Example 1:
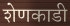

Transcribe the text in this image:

शेणकाडी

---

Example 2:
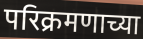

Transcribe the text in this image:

परिक्रमणाच्या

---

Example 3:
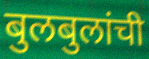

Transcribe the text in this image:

बुलबुलांची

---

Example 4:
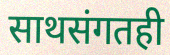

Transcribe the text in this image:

साथसंगतही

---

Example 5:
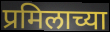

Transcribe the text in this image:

प्रमिलाच्या